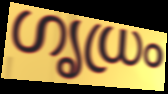
ഗൃധ്രം